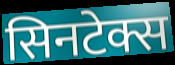
सिनटेक्स